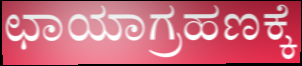
ಛಾಯಾಗ್ರಹಣಕ್ಕೆ